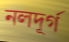
নলদূর্গ